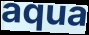
aqua